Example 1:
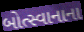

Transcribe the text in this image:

બોત્સ્વાનાના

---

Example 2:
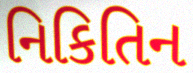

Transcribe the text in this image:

નિકિતિન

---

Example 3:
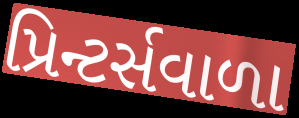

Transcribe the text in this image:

પ્રિન્ટર્સવાળા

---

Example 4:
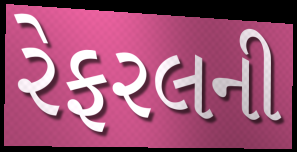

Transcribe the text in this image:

રેફરલની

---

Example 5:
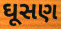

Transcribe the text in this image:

ઘૂસણ